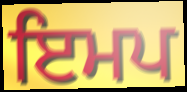
ਇਮਪ